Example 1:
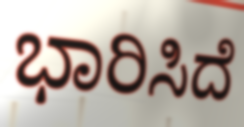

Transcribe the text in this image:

ಭಾರಿಸಿದೆ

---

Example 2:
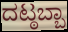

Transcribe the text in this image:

ದಟ್ಠಬ್ಬಾ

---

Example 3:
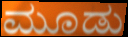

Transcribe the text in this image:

ಮೂಡು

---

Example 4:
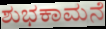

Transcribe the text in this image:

ಶುಭಕಾಮನೆ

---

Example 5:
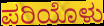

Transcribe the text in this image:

ಪರಿಯೊಳು